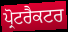
ਪ੍ਰੋਟਰੈਕਟਰ